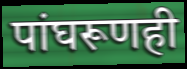
पांघरूणही